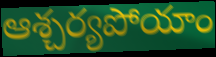
ఆశ్చర్యపోయాం